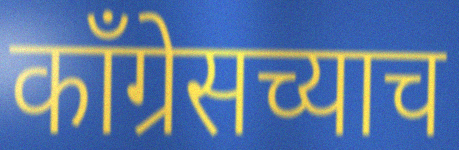
काँग्रेसच्याच